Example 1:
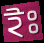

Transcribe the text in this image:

ইঃ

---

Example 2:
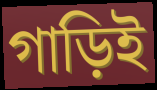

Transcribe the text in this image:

গাড়িই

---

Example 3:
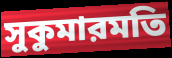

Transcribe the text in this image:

সুকুমারমতি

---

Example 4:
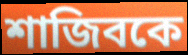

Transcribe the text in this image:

শাজিবকে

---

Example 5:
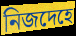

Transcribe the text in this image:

নিজদেহে